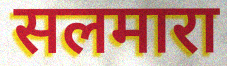
सलमारा